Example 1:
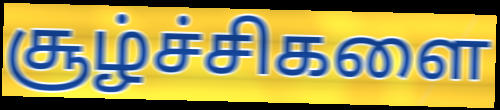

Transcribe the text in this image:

சூழ்ச்சிகளை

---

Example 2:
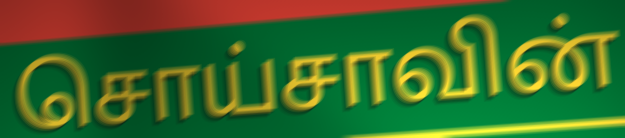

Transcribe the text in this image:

சொய்சாவின்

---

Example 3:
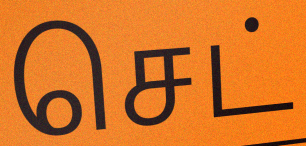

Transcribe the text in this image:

செட்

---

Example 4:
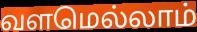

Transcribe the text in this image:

வளமெல்லாம்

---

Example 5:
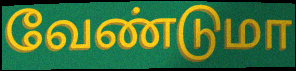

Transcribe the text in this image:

வேண்டுமா